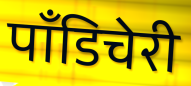
पॉंडिचेरी